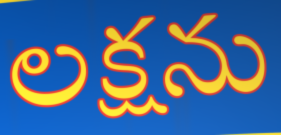
లక్షను